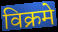
विक्रमे